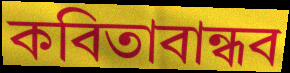
কবিতাবান্ধব